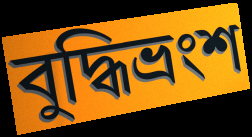
বুদ্ধিভ্রংশ